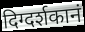
दिग्दर्शकानं